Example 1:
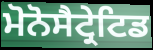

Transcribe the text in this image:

ਮੋਨੋਸੈਟ੍ਰੇਟਿਡ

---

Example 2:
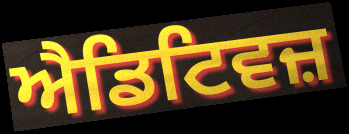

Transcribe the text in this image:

ਐਡਿਟਿਵਜ਼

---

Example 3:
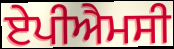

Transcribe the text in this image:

ਏਪੀਐਮਸੀ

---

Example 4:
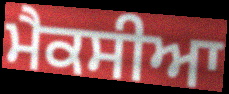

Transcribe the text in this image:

ਮੈਕਸੀਆ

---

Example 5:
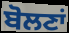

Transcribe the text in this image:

ਬੋਲਣਾਂ